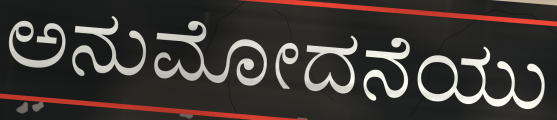
ಅನುಮೋದನೆಯು